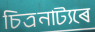
চিত্ৰনাট্যৰে